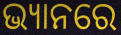
ଭ୍ୟାନରେ